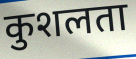
कुशलता